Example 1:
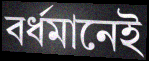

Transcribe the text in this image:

বর্ধমানেই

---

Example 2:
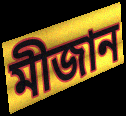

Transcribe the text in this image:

মীজান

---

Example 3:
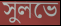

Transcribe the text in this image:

সুলভে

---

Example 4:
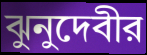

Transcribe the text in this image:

ঝুনুদেবীর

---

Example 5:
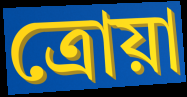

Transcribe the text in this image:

ত্রোয়া